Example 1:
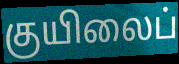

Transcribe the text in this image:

குயிலைப்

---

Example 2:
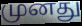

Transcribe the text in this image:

முனது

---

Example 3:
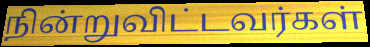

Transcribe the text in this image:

நின்றுவிட்டவர்கள்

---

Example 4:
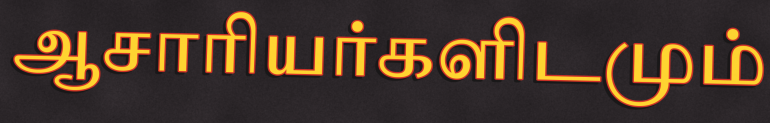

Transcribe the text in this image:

ஆசாரியர்களிடமும்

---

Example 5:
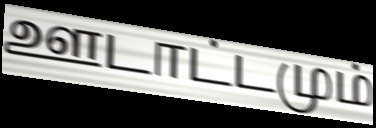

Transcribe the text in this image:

ஊடாட்டமும்